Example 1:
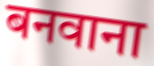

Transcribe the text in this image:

बनवाना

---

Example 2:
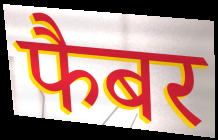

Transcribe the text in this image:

फैबर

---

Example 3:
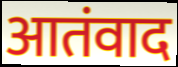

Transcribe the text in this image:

आतंवाद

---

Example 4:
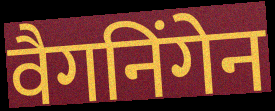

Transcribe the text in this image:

वैगनिंगेन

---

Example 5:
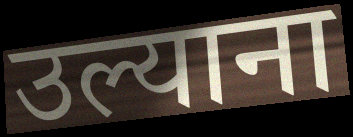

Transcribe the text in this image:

उल्याना